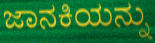
ಜಾನಕಿಯನ್ನು